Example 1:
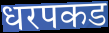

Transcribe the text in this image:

धरपकड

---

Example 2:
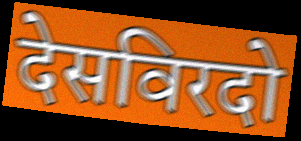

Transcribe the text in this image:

देसविरदो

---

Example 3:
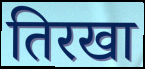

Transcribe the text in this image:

तिरखा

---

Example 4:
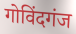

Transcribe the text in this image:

गोविंदगंज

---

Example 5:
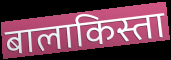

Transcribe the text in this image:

बालाकिस्ता